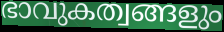
ഭാവുകത്വങ്ങളും